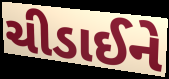
ચીડાઈને